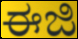
ಈಜಿ